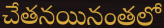
చేతనయినంతలో